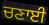
ਚਣਾਈ